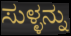
ಸುಳ್ಳನ್ನು